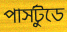
পার্সটুডে